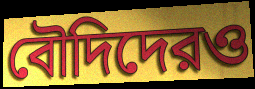
বৌদিদেরও